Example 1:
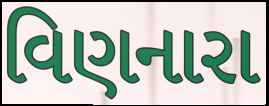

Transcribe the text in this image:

વિણનારા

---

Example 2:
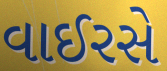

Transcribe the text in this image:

વાઈરસે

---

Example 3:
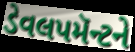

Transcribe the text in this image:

ડેવલપમૅન્ટને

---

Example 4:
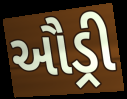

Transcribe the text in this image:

ઔડ્રી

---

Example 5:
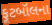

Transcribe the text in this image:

ફૂટબૉલના